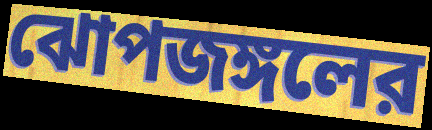
ঝোপজঙ্গলের